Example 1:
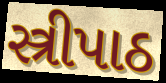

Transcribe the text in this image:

સ્ત્રીપાઠ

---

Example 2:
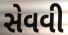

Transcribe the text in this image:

સેવવી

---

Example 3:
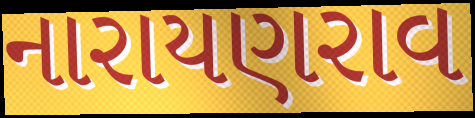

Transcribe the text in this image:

નારાયણરાવ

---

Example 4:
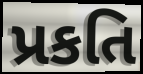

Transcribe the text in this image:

પ્રકતિ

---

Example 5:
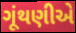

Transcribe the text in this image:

ગૂંથણીએ